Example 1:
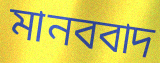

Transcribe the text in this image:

মানববাদ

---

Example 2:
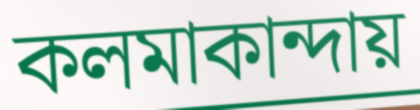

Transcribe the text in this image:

কলমাকান্দায়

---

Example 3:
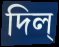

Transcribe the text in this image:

দিল্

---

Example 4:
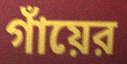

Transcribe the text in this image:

গাঁয়ের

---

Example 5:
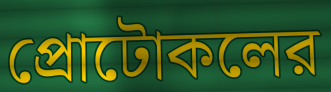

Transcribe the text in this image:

প্রোটোকলের